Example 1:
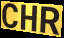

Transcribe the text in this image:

CHR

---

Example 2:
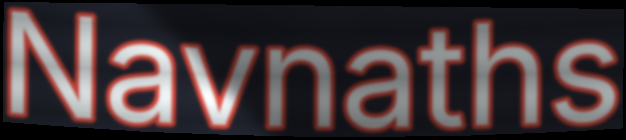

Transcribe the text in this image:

Navnaths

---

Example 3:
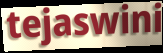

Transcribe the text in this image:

tejaswini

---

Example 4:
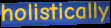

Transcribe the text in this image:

holistically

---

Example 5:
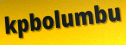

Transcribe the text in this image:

kpbolumbu